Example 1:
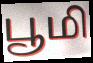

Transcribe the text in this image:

பூமி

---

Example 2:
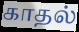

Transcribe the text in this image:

காதல்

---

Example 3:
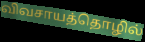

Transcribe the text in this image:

விவசாயத்தொழில்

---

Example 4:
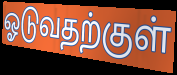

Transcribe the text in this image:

ஓடுவதற்குள்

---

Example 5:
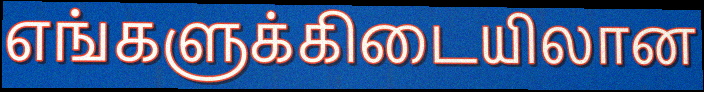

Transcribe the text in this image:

எங்களுக்கிடையிலான